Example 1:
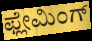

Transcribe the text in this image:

ಫ್ಲೇಮಿಂಗ್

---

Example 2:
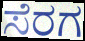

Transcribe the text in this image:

ಸೆರಗ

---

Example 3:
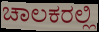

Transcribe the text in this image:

ಚಾಲಕರಲ್ಲಿ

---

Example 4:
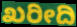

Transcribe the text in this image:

ಖರೀದಿ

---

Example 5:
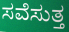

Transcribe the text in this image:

ಸವೆಸುತ್ತ